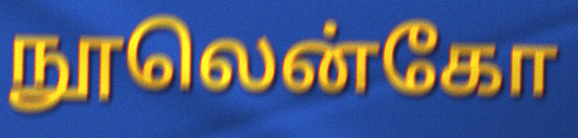
நூலென்கோ